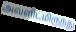
அவளிடமிருந்து